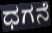
ಧಗನೆ